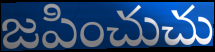
జపించుచు